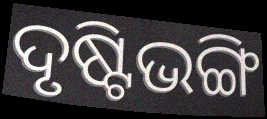
ଦୃଷ୍ଟିଭଙ୍ଗି